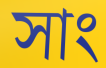
সাং